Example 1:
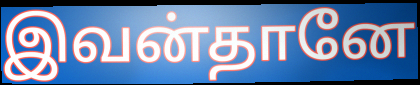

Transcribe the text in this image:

இவன்தானே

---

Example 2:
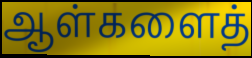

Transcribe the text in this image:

ஆள்களைத்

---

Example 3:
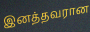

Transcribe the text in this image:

இனத்தவரான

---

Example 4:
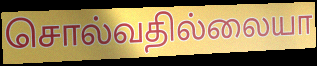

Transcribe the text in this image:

சொல்வதில்லையா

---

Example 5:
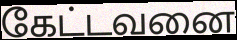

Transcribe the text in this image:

கேட்டவனை